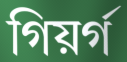
গিয়ৰ্গ